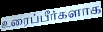
உரைப்பீர்களாக